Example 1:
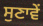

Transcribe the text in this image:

ਸੁਣਾਵੇਂ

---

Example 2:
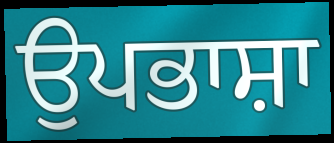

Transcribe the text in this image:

ਉਪਭਾਸ਼ਾ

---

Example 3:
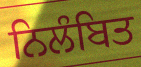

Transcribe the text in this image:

ਨਿਲੰਬਿਤ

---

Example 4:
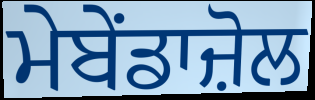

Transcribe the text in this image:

ਮੇਬੇਂਡਾਜ਼ੋਲ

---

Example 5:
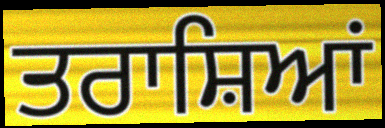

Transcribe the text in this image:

ਤਰਾਸ਼ਿਆਂ